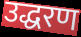
उद्धरण